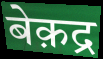
बेक़द्र